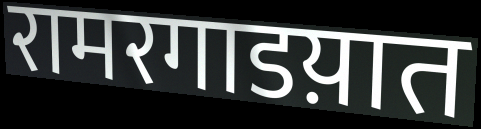
रामरगाडय़ात